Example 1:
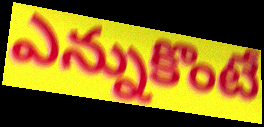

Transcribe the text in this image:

ఎన్నుకొంటే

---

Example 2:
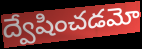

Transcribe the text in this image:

ద్వేషించడమో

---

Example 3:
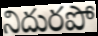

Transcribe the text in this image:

నిదురపో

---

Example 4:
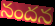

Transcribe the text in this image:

నందన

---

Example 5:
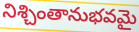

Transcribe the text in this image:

నిశ్చింతానుభవమై